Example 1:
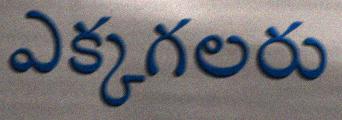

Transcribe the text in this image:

ఎక్కగలరు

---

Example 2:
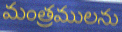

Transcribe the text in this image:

మంత్రములను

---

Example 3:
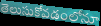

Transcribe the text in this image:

తెలుసుకోవడంలోనూ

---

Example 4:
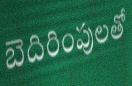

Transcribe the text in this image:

బెదిరింపులతో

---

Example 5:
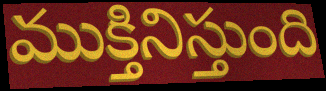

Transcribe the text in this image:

ముక్తినిస్తుంది